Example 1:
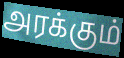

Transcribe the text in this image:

அரக்கும்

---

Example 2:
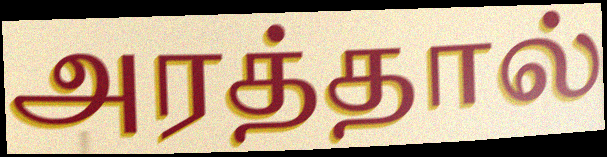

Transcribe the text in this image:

அரத்தால்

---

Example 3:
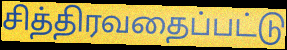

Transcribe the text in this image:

சித்திரவதைப்பட்டு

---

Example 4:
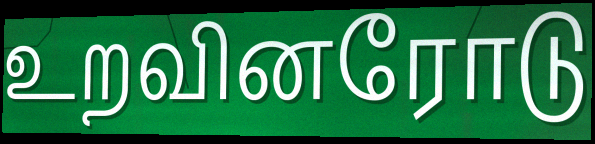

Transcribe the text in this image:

உறவினரோடு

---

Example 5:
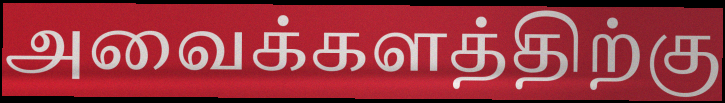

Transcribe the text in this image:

அவைக்களத்திற்கு